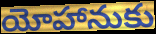
యోహానుకు